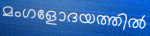
മംഗളോദയത്തിൽ